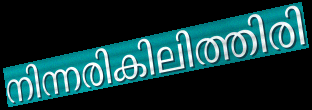
നിന്നരികിലിത്തിരി